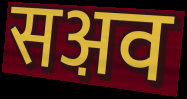
सअ़व